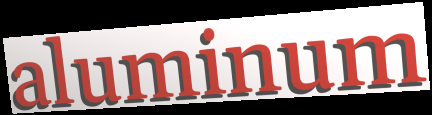
aluminum